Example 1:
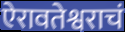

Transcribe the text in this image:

ऐरावतेश्वराचं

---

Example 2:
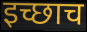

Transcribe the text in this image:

इच्छाच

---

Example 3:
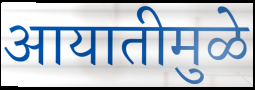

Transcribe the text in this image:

आयातीमुळे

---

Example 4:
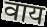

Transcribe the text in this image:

वाय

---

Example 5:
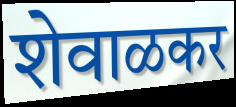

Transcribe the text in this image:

शेवाळकर